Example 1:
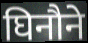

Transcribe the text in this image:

घिनौने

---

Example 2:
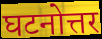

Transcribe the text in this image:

घटनोत्तर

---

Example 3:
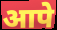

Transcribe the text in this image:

आपे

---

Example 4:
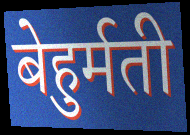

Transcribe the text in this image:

बेहुर्मती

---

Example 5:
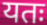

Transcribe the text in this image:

यतः